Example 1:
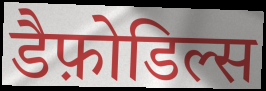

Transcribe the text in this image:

डैफ़ोडिल्स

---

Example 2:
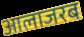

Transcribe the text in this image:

आलाजरब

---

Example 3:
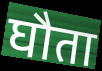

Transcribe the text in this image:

घौता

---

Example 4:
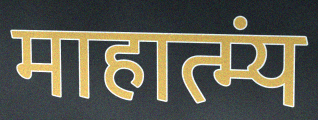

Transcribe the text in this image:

माहात्म्यं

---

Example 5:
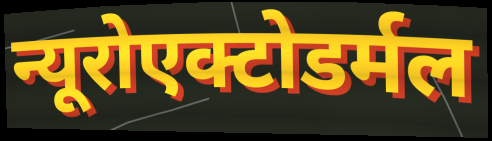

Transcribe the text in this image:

न्यूरोएक्टोडर्मल